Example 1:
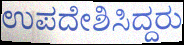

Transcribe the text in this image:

ಉಪದೇಶಿಸಿದ್ದರು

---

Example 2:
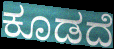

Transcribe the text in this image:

ಕೂಡದೆ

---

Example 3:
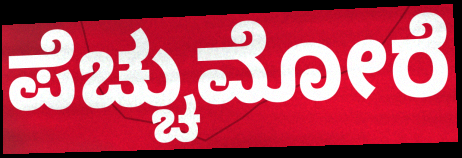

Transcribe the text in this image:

ಪೆಚ್ಚುಮೋರೆ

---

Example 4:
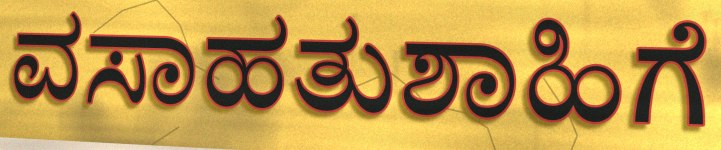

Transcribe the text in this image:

ವಸಾಹತುಶಾಹಿಗೆ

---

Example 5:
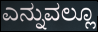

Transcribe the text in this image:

ಎನ್ನುವಲ್ಲೂ